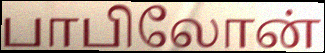
பாபிலோன்